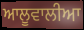
ਆਲੂਵਾਲੀਆ